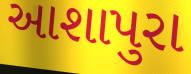
આશાપુરા